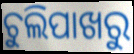
ଚୁଲିପାଖରୁ